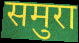
समुरा